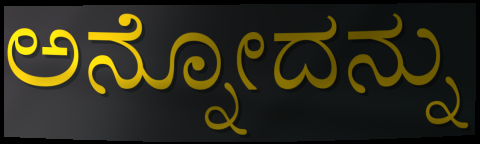
ಅನ್ನೋದನ್ನು